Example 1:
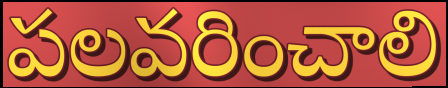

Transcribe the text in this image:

పలవరించాలి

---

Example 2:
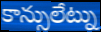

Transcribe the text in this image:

కాన్సులేట్ను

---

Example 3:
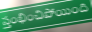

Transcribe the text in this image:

స్తంభించిపోయింది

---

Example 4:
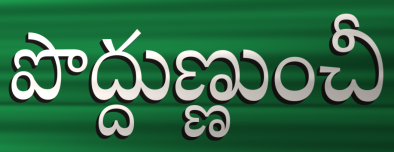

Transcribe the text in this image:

పొద్దుణ్ణుంచీ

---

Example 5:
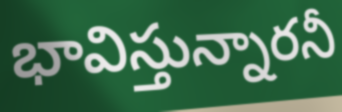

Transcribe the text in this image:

భావిస్తున్నారనీ